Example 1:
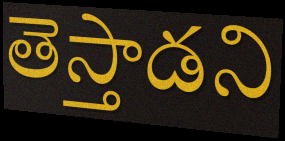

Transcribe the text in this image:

తెస్తాడని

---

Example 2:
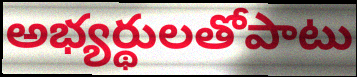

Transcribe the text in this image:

అభ్యర్థులతోపాటు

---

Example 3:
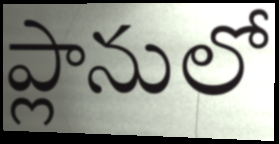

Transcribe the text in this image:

ప్లానులో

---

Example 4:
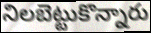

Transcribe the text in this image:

నిలబెట్టుకొన్నారు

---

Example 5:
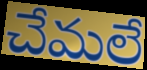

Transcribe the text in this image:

చేమలే